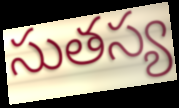
సుతస్య